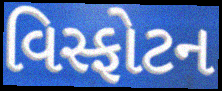
વિસ્ફોટન